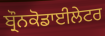
ਬ੍ਰੌਨਕੋਡਾਈਲੇਟਰ